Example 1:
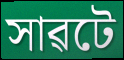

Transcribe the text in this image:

সাৱটে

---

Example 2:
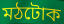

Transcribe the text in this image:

মঠটোক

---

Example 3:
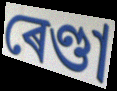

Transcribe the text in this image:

ৰেণ্ডা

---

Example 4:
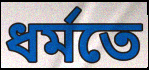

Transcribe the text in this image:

ধৰ্মতে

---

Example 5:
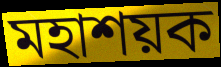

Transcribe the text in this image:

মহাশয়ক